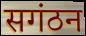
सगंठन